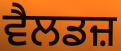
ਵੈਲਡਜ਼